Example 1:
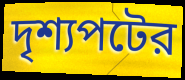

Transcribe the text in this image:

দৃশ্যপটের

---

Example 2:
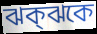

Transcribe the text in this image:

ঝক্‌ঝকে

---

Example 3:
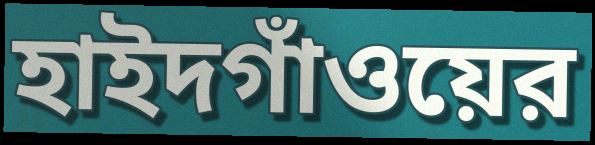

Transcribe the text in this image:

হাইদগাঁওয়ের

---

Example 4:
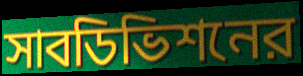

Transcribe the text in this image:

সাবডিভিশনের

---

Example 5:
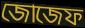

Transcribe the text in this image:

জোজেফ